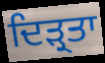
ਦਿੜ੍ਰਤਾ